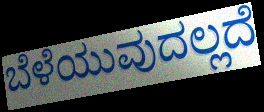
ಬೆಳೆಯುವುದಲ್ಲದೆ